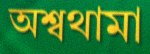
অশ্বথামা